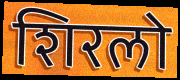
शिरलो